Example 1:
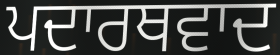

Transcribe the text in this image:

ਪਦਾਰਥਵਾਦ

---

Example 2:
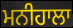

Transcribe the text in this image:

ਮਨੀਹਾਲਾ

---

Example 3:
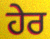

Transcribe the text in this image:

ਹੇਰ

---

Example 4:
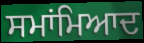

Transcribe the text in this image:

ਸਮਾਂਮਿਆਦ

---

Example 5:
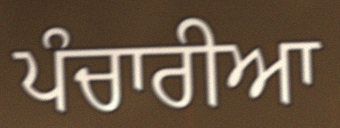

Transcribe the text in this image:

ਪੰਚਾਰੀਆ